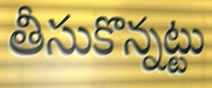
తీసుకొన్నట్టు